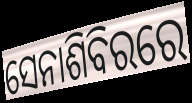
ସେନାଶିବିରରେ